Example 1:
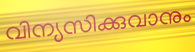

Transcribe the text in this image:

വിന്യസിക്കുവാനും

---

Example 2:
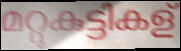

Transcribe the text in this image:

മറ്റുകുട്ടികള്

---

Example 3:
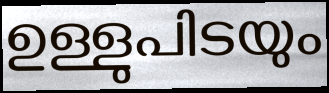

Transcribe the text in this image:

ഉള്ളുപിടയും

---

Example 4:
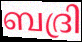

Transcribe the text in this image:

ബദ്രി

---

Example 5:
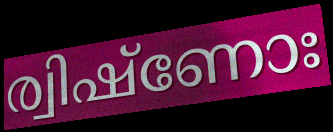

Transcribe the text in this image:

ര്വിഷ്ണോഃ